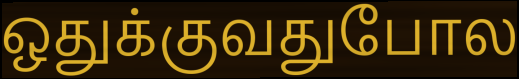
ஒதுக்குவதுபோல